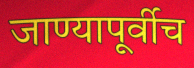
जाण्यापूर्वीच